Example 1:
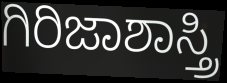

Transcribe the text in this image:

ಗಿರಿಜಾಶಾಸ್ತ್ರಿ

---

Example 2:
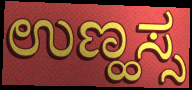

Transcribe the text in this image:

ಉಣ್ಹಸ್ಸ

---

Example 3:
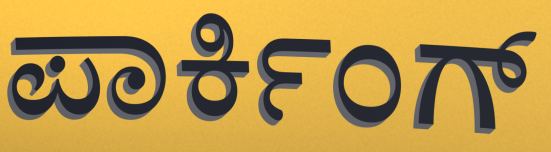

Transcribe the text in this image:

ಪಾರ್ಕಿಂಗ್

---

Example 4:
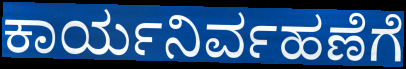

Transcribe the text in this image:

ಕಾರ್ಯನಿರ್ವಹಣೆಗೆ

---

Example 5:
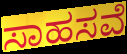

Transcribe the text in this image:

ಸಾಹಸವೆ